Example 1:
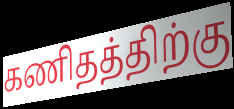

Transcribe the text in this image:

கணிதத்திற்கு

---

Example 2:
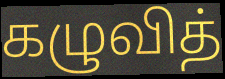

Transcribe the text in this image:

கழுவித்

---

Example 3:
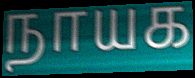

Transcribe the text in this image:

நாயக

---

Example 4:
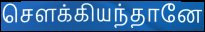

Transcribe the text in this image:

சௌக்கியந்தானே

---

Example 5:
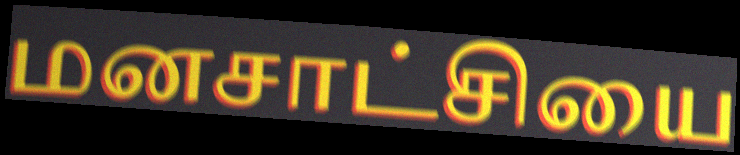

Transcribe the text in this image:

மனசாட்சியை